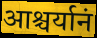
आश्चर्यानं